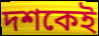
দশকেই